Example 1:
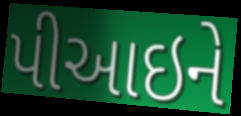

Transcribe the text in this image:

પીઆઇને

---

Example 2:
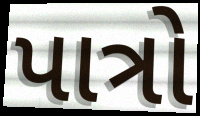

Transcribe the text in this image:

પાત્રો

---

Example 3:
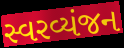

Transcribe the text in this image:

સ્વરવ્યંજન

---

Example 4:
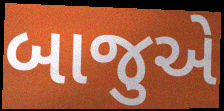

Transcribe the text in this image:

બાજુએ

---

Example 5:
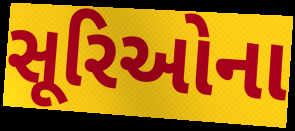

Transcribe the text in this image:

સૂરિઓના